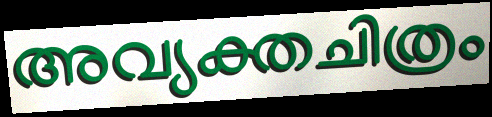
അവ്യക്തചിത്രം